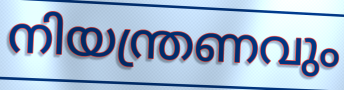
നിയന്ത്രണവും